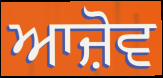
ਆਜ਼ੋਵ